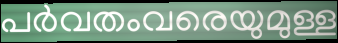
പർവതംവരെയുമുള്ള